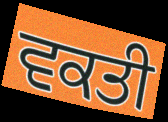
ਵਕਤੀ